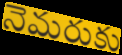
నెమరుకు